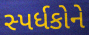
સ્પર્ધકોને